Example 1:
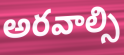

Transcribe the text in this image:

అరవాల్సి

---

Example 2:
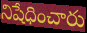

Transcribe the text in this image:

నిషేధించారు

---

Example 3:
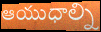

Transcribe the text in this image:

ఆయుధాల్ని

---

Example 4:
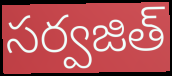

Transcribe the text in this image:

సర్వజిత్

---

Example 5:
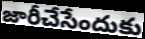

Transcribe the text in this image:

జారీచేసేందుకు